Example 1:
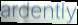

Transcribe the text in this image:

ardently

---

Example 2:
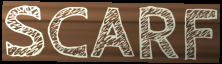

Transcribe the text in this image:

SCARF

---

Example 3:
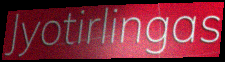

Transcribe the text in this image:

Jyotirlingas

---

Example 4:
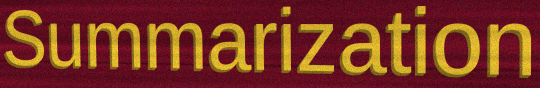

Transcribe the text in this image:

Summarization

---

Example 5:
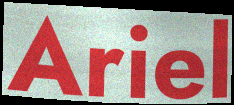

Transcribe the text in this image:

Ariel